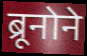
ब्रूनोने